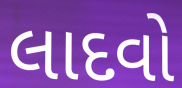
લાદવો